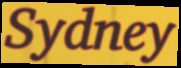
Sydney